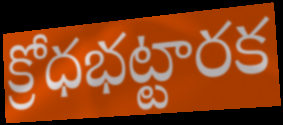
క్రోధభట్టారక